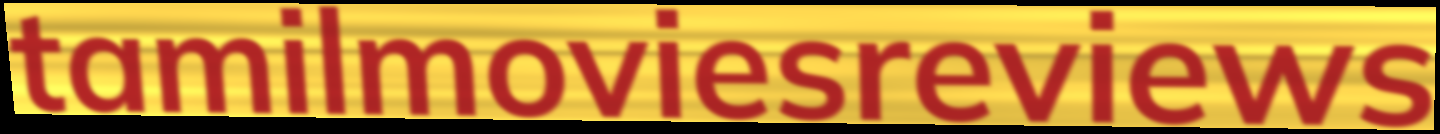
tamilmoviesreviews